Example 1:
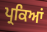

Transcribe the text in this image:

ਪ੍ਰਕਿਆਂ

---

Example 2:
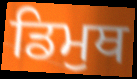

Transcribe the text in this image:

ਡਿਮੁਥ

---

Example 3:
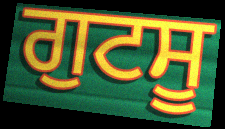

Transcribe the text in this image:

ਗੁਟਸੂ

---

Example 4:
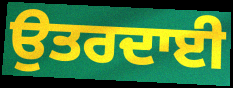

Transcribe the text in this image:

ਉਤਰਦਾਈ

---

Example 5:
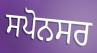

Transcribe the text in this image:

ਸਪੋਨਸਰ